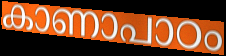
കാണാപാഠം